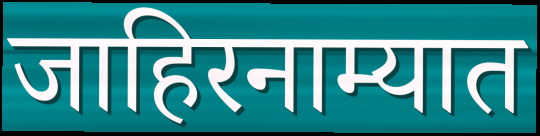
जाहिरनाम्यात